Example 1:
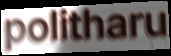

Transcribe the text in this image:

politharu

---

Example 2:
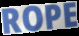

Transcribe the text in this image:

ROPE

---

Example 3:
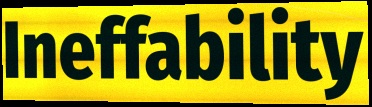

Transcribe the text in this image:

Ineffability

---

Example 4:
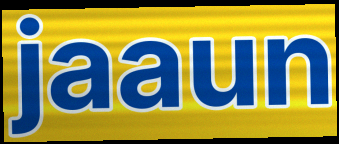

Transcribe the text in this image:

jaaun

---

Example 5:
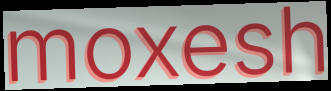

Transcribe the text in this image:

moxesh